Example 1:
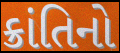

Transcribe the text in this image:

ક્રાંતિનો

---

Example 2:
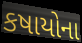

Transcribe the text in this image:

કષાયોના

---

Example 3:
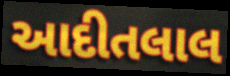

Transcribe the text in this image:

આદીતલાલ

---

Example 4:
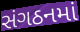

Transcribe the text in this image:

સંગઠનમાં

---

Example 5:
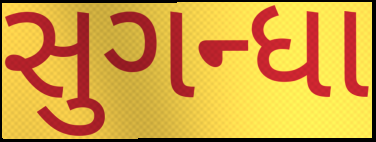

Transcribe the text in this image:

સુગન્ધા